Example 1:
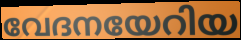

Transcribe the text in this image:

വേദനയേറിയ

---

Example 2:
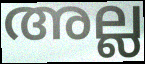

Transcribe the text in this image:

അല്ല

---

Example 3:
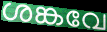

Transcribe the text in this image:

ശങ്കവേ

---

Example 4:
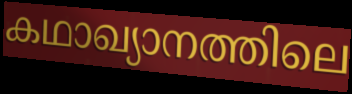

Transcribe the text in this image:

കഥാഖ്യാനത്തിലെ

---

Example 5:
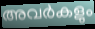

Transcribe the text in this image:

അവർകളും